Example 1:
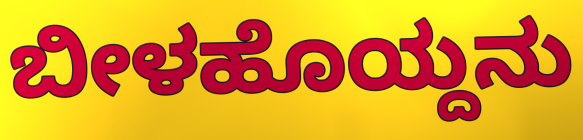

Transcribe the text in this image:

ಬೀಳಹೊಯ್ದನು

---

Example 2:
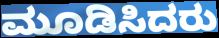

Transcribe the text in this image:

ಮೂಡಿಸಿದರು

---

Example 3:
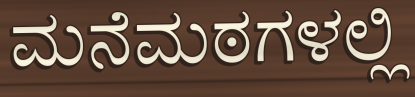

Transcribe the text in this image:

ಮನೆಮಠಗಳಲ್ಲಿ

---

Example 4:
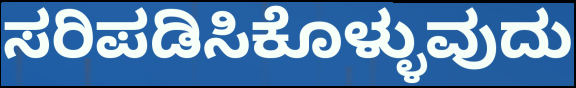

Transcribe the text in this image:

ಸರಿಪಡಿಸಿಕೊಳ್ಳುವುದು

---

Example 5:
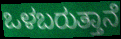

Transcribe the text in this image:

ಒಳಬರುತ್ತಾನೆ